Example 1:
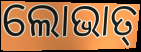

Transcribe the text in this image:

ଲୋଭାତ୍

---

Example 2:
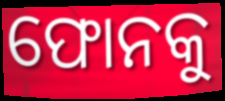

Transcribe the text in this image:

ଫୋନକୁ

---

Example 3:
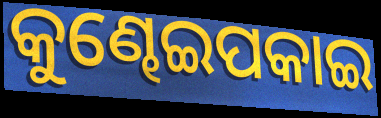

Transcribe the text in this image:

କୁଣ୍ଢେଇପକାଇ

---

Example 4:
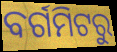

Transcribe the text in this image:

ବର୍ଗମିଟରୁ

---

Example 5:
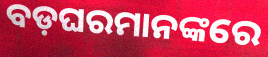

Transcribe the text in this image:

ବଡ଼ଘରମାନଙ୍କରେ